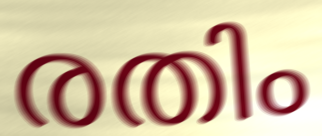
രതിം